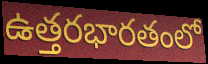
ఉత్తరభారతంలో